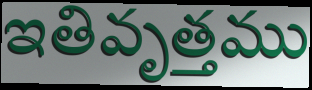
ఇతివృత్తము